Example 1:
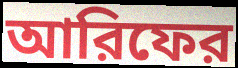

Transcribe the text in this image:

আরিফের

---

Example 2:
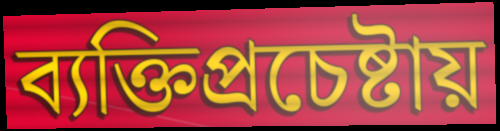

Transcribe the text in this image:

ব্যক্তিপ্রচেষ্টায়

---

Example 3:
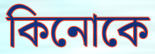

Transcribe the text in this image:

কিনোকে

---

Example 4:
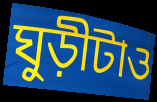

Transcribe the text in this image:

ঘুড়ীটাও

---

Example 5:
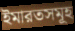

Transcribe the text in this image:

ইমারতসমূহ